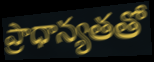
ప్రాధాన్యతతో